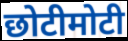
छोटीमोटी